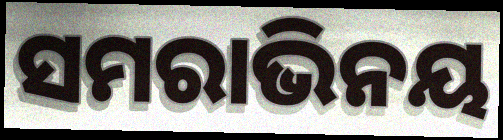
ସମରାଭିନୟ